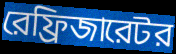
রেফ্রিজারেটর